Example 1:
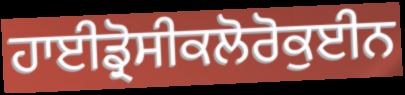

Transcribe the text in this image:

ਹਾਈਡ੍ਰੋਸੀਕਲੋਰੋਕੁਈਨ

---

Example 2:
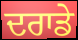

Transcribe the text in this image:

ਦਰਾਡੇ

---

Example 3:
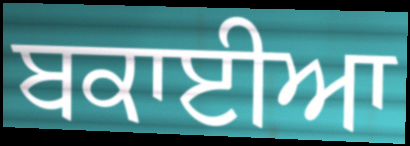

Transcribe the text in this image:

ਬਕਾਈਆ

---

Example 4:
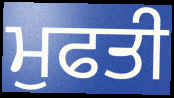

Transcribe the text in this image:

ਮੁਫਤੀ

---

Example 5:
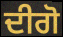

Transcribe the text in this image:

ਦੀਗੋ